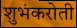
शुभंकरोती